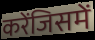
करेंजिसमें